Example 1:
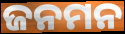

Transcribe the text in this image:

ଜନମନ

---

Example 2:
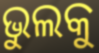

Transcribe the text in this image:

ଭୁଲକୁ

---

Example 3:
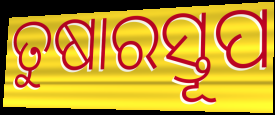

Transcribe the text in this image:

ତୁଷାରସ୍ତୂପ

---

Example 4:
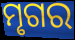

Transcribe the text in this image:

ମୃଗର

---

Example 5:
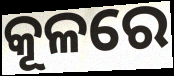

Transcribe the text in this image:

କୂଳରେ